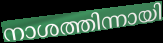
നാശത്തിന്നായി